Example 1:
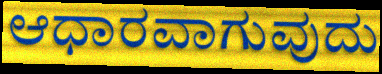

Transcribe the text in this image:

ಆಧಾರವಾಗುವುದು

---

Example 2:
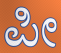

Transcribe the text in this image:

ಪೀ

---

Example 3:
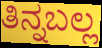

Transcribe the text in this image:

ತಿನ್ನಬಲ್ಲ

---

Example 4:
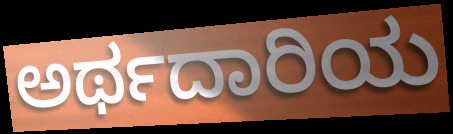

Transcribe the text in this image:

ಅರ್ಥದಾರಿಯ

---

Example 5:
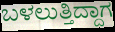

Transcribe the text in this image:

ಬಳಲುತ್ತಿದ್ದಾಗ